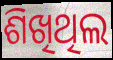
ଶିଖିଥିଲ